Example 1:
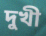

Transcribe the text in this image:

দুখী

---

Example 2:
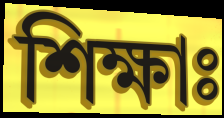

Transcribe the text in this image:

শিক্ষাঃ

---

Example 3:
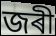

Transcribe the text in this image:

জৰী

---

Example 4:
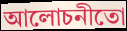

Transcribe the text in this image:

আলোচনীতো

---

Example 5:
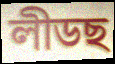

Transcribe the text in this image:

লীডছ